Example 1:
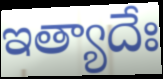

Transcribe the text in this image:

ఇత్యాదేః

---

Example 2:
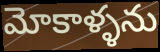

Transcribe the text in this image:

మోకాళ్ళను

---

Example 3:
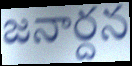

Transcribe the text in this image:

జనార్దన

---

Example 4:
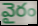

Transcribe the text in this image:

వైరం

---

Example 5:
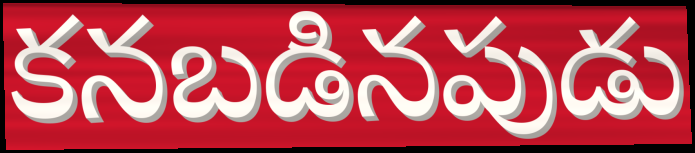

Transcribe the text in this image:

కనబడినపుడు